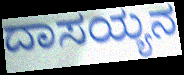
ದಾಸಯ್ಯನ